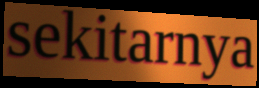
sekitarnya